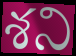
శని